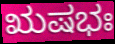
ಋಷಭಃ